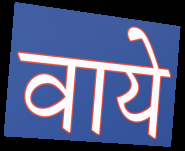
वाये